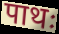
पाथः